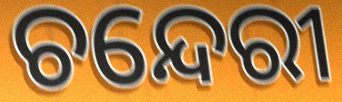
ଚନ୍ଦେରୀ